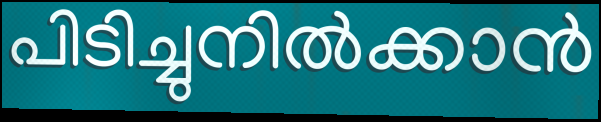
പിടിച്ചുനിൽക്കാൻ